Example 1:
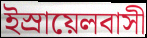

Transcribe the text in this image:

ইস্রায়েলবাসী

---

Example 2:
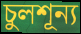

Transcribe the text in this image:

চুলশূন্য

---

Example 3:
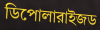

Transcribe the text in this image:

ডিপোলারাইজড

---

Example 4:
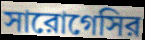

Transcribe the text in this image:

সারোগেসির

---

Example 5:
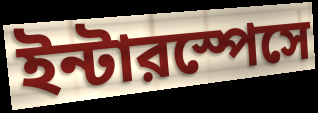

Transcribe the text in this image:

ইন্টারস্পেসে